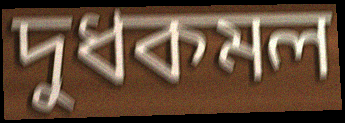
দুধকমল